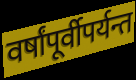
वर्षांपूर्वीपर्यन्त